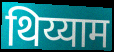
थिय्याम